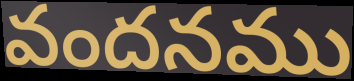
వందనము